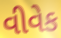
વીવેક